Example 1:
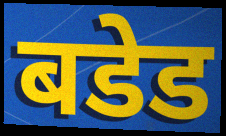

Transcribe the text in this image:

बडेड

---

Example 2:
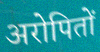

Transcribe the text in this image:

अरोपितों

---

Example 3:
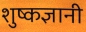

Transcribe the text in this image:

शुष्कज्ञानी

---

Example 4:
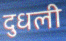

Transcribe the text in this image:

दुधली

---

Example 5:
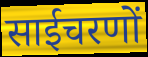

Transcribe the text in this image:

साईचरणों